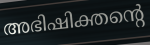
അഭിഷിക്തന്റെ